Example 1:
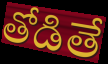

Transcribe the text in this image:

తోడితే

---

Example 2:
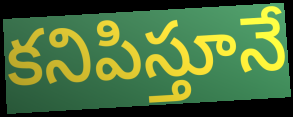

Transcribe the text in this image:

కనిపిస్తూనే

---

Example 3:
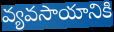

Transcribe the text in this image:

వ్యవసాయానికి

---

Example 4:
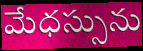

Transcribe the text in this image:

మేధస్సును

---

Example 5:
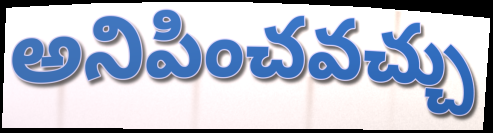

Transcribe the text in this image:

అనిపించవచ్చు